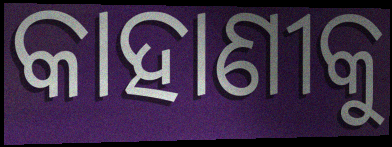
କାହାଣୀକୁ